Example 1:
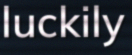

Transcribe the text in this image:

luckily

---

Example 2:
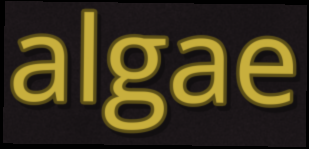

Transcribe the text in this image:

algae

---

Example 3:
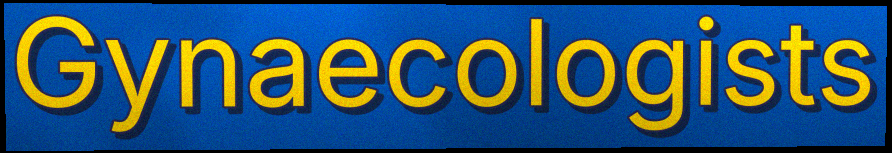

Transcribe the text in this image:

Gynaecologists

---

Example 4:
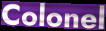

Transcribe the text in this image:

Colonel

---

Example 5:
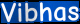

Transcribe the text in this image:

Vibhas